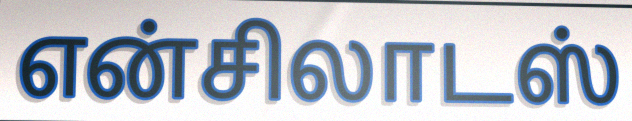
என்சிலாடஸ்